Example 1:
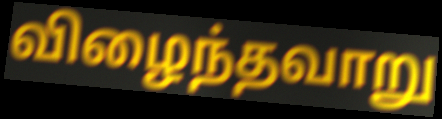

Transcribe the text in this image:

விழைந்தவாறு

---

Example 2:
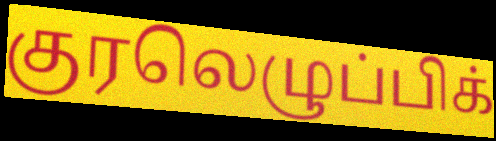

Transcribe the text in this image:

குரலெழுப்பிக்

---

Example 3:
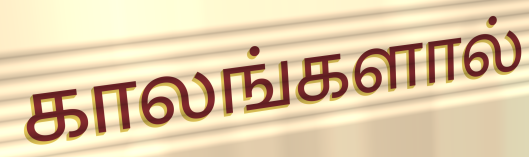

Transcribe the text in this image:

காலங்களால்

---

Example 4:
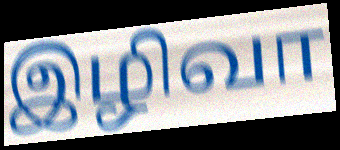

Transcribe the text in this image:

இழிவா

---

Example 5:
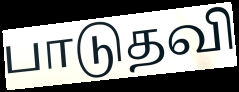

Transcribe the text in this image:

பாடுதவி